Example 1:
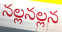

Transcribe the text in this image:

నల్లనల్లన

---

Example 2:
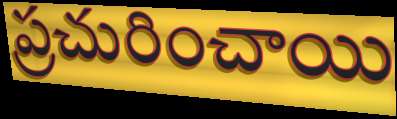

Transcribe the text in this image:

ప్రచురించాయి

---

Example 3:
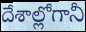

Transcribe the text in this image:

దేశాల్లోగానీ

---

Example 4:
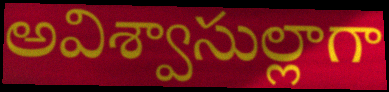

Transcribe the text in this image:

అవిశ్వాసుల్లాగా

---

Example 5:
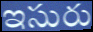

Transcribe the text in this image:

ఇసురు